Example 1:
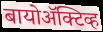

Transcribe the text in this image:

बायोॲक्टिव्ह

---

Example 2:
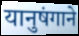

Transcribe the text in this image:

यानुषंगाने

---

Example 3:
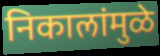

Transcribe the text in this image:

निकालांमुळे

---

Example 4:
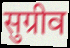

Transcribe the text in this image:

सुग्रीव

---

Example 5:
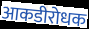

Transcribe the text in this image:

आकडीरोधक